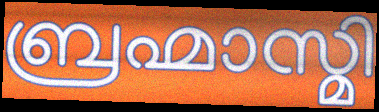
ബ്രഹ്മാസ്മി